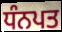
ਧੰਨਪਤ